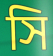
সি